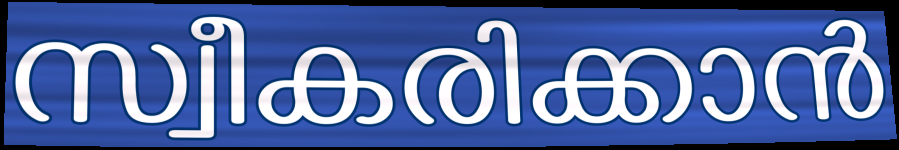
സ്വീകരിക്കാൻ